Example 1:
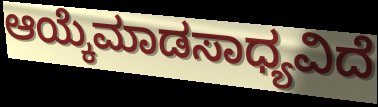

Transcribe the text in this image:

ಆಯ್ಕೆಮಾಡಸಾಧ್ಯವಿದೆ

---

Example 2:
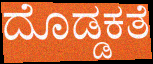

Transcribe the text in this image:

ದೊಡ್ಡಕತೆ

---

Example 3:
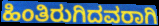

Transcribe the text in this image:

ಹಿಂತಿರುಗಿದವರಾಗಿ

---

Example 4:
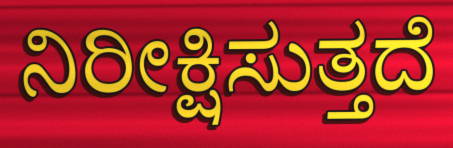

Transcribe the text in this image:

ನಿರೀಕ್ಷಿಸುತ್ತದೆ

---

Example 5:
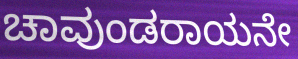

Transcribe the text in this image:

ಚಾವುಂಡರಾಯನೇ